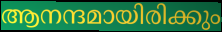
ആനന്ദമായിരിക്കും